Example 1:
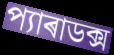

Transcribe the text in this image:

প্যাৰাডক্স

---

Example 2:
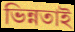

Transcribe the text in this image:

ভিন্নতাই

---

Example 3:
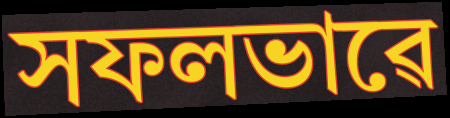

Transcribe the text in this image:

সফলভাৱে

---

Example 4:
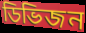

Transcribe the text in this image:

ডিভিজন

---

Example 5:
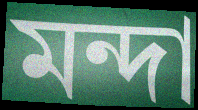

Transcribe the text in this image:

মন্দা